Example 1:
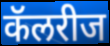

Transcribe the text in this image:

कॅलरीज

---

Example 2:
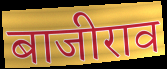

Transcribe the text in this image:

बाजीराव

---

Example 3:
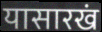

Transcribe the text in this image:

यासारखं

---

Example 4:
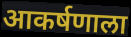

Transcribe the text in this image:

आकर्षणाला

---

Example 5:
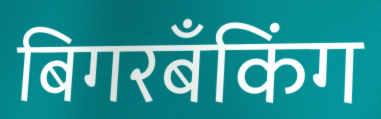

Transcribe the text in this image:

बिगरबँकिंग